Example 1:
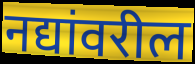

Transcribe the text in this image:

नद्यांवरील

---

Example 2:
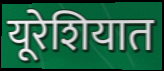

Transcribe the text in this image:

यूरेशियात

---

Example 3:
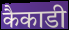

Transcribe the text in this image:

कैकाडी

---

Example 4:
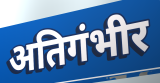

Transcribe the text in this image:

अतिगंभीर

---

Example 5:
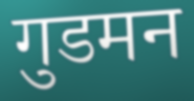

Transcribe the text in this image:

गुडमन